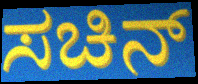
ಸಚಿನ್